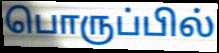
பொருப்பில்